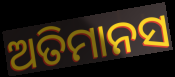
ଅତିମାନସ